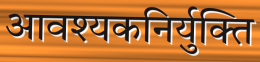
आवश्यकनिर्युक्ति